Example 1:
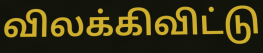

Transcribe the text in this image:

விலக்கிவிட்டு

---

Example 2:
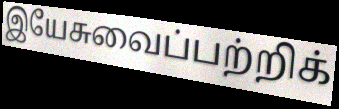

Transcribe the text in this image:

இயேசுவைப்பற்றிக்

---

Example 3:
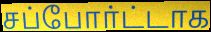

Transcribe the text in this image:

சப்போர்ட்டாக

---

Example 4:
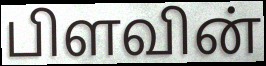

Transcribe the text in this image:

பிளவின்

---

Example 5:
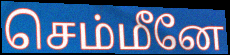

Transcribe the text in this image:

செம்மீனே